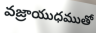
వజ్రాయుధముతో